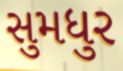
સુમધુર